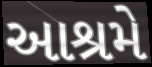
આશ્રમે